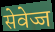
सेवेज्ज